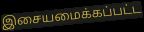
இசையமைக்கப்பட்ட